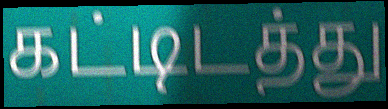
கட்டிடத்து